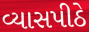
વ્યાસપીઠે